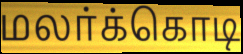
மலர்க்கொடி